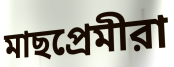
মাছপ্রেমীরা